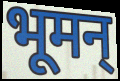
भूमन्